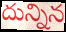
దున్నిన